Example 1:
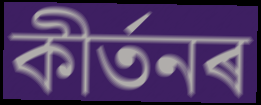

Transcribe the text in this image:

কীৰ্তনৰ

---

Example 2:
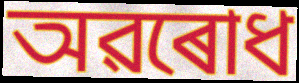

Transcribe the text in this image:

অৱৰোধ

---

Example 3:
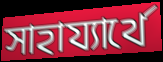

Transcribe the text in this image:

সাহায্যাৰ্থে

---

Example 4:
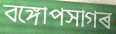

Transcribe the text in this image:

বঙ্গোপসাগৰ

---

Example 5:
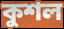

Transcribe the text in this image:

কুশল